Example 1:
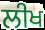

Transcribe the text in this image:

ਲੀਖ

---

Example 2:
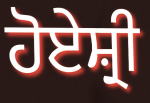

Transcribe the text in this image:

ਹੋਏਸ਼੍ਰੀ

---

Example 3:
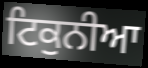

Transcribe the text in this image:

ਟਿਕੁਨੀਆ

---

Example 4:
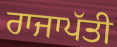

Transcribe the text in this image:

ਰਾਜਾਪੱਤੀ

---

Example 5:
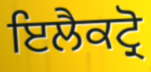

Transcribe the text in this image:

ਇਲੈਕਟ੍ਰੋ